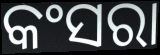
କଂସରା